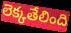
లెక్కతేలింది